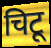
चिटू